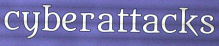
cyberattacks